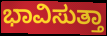
ಭಾವಿಸುತ್ತಾ